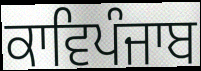
ਕਾਵਿਪੰਜਾਬ